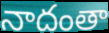
నాదంతా